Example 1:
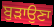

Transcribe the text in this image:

ਬੁੜਾਉਣਾ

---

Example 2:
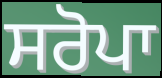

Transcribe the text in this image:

ਸਰੋਪਾ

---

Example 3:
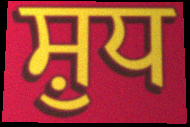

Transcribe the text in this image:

ਸ਼ੁਧ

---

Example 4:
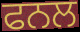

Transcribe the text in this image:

ਫਨਲ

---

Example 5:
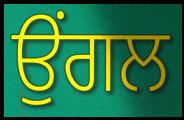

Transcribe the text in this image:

ਉੰਗਲ